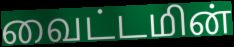
வைட்டமின்